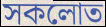
সকলোত